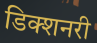
डिक्‍शनरी